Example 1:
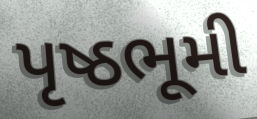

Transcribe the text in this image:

પૃષ્ઠભૂમી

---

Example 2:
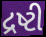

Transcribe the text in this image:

દ્રષ્ટી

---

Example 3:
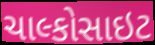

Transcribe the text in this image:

ચાલ્કોસાઇટ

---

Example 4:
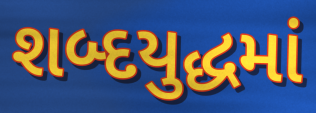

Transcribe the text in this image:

શબ્દયુદ્ધમાં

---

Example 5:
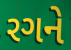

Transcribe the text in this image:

રગને